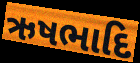
ઋષભાદિ